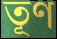
তূণ